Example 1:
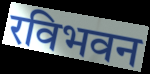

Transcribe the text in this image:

रविभवन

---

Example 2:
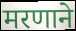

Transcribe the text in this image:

मरणाने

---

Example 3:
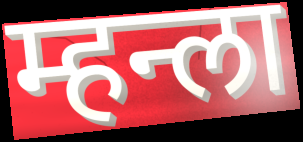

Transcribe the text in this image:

म्हन्ला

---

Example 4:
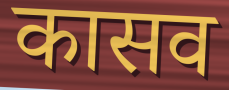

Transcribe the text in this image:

कासव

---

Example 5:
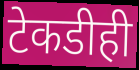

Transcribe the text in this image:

टेकडीही